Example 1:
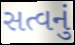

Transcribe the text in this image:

સત્વનું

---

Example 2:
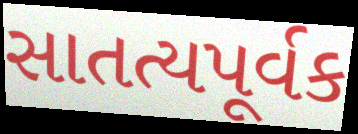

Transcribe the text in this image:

સાતત્યપૂર્વક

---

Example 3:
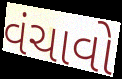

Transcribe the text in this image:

વંચાવો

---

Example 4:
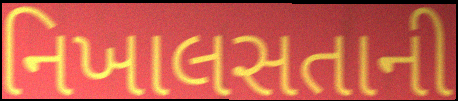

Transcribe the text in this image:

નિખાલસતાની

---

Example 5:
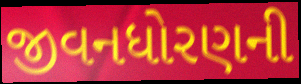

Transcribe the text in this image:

જીવનધોરણની